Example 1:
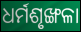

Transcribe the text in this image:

ଧର୍ମଶୃଙ୍ଖଳା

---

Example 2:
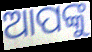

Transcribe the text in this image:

ଆପଙ୍କୁ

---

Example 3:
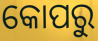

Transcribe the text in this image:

କୋପରୁ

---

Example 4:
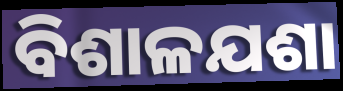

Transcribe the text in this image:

ବିଶାଳଯଶା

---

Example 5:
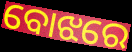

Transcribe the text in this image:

ବୋଝରେ